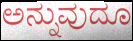
ಅನ್ನುವುದೂ